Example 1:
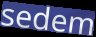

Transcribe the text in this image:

sedem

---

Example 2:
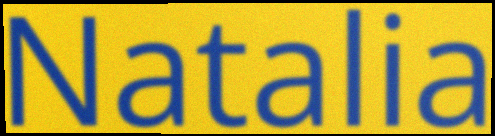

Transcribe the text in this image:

Natalia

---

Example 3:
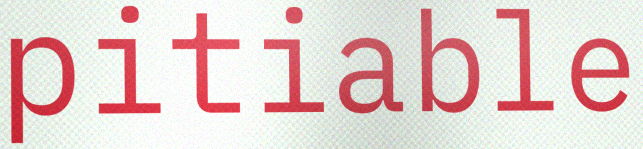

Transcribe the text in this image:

pitiable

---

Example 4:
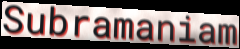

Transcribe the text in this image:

Subramaniam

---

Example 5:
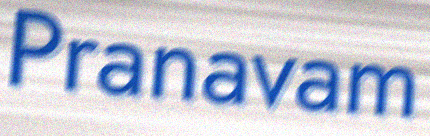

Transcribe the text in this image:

Pranavam